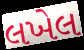
લખેલ